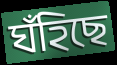
ঘঁহিছে